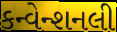
કન્વેન્શનલી